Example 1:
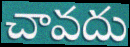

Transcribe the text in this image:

చావదు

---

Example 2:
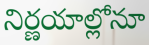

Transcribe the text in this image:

నిర్ణయాల్లోనూ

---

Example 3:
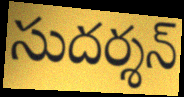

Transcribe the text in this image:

సుదర్శన్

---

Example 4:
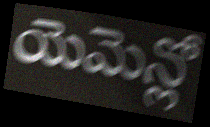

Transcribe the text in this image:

యెమెన్లో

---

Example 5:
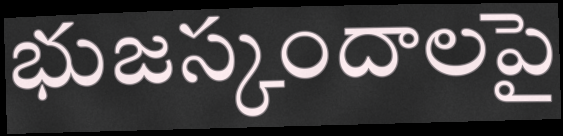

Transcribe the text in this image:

భుజస్కందాలపై